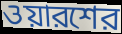
ওয়ারশের